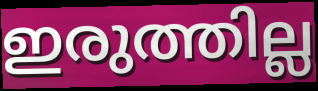
ഇരുത്തില്ല